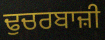
ਢੁਚਰਬਾਜ਼ੀ